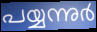
പയ്യന്നുർ